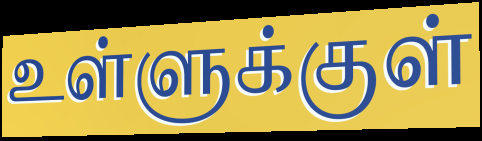
உள்ளுக்குள்